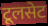
टूलसेट